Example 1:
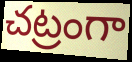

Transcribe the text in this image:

చట్రంగా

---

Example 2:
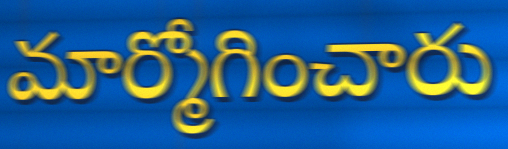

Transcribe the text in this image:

మార్మోగించారు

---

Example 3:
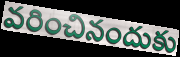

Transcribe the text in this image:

వరించినందుకు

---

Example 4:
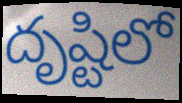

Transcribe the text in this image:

దృష్టిలో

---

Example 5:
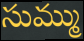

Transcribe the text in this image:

సుమ్ము